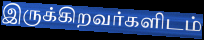
இருக்கிறவர்களிடம்